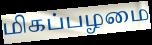
மிகப்பழமை